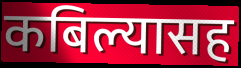
कबिल्यासह